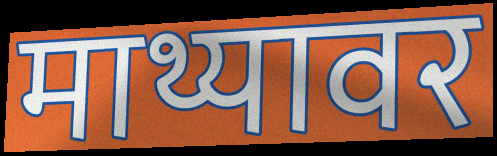
माथ्यावर